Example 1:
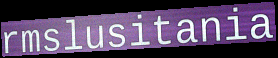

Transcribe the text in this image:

rmslusitania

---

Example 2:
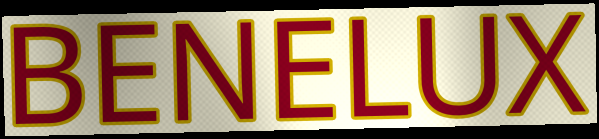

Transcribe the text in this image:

BENELUX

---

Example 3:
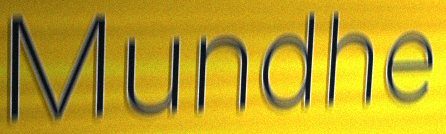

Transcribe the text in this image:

Mundhe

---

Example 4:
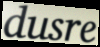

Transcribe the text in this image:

dusre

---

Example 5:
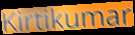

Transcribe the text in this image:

Kirtikumar